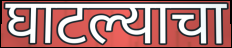
घाटल्याचा